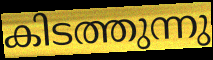
കിടത്തുന്നു